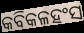
କବିକଳହଂସ